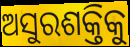
ଅସୁରଶକ୍ତିକୁ